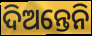
ଦିଅନ୍ତେନି